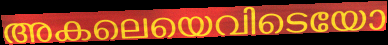
അകലെയെവിടെയോ